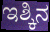
ಇಶ್ಕಿನ